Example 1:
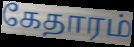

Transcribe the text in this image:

கேதாரம்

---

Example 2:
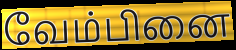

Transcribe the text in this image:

வேம்பினை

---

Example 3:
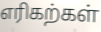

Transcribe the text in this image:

எரிகற்கள்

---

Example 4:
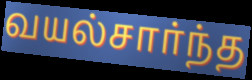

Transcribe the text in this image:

வயல்சார்ந்த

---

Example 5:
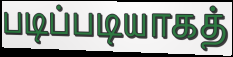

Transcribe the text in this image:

படிப்படியாகத்